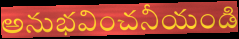
అనుభవించనీయండి